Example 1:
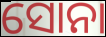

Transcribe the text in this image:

ସୋନା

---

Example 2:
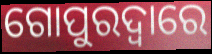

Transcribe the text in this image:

ଗୋପୁରଦ୍ଵାରେ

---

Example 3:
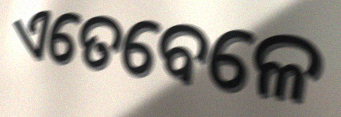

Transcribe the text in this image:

ଏତେବେଳେ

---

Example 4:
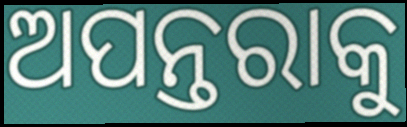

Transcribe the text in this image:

ଅପନ୍ତରାକୁ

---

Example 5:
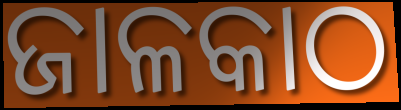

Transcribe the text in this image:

ଜାଳକାଠ